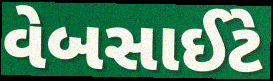
વેબસાઈટે